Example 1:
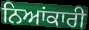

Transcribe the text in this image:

ਨਿਆਂਕਾਰੀ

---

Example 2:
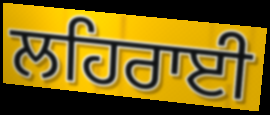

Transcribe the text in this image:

ਲਹਿਰਾਈ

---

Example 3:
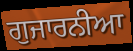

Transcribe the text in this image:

ਗੁਜਾਰਨੀਆ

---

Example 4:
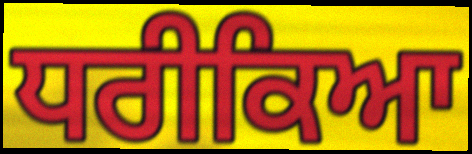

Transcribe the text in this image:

ਧਰੀਕਿਆ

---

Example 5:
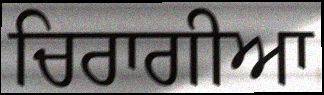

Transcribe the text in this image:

ਚਿਰਾਗੀਆ